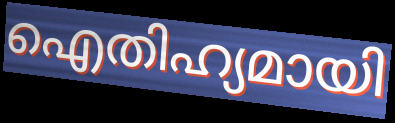
ഐതിഹ്യമായി